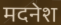
मदनेश